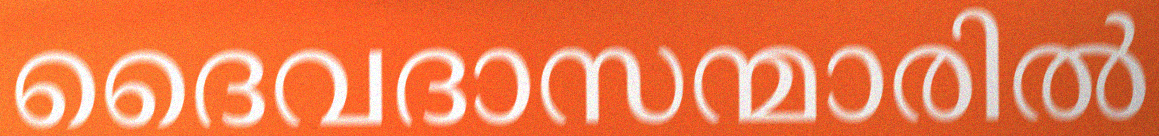
ദൈവദാസന്മാരിൽ